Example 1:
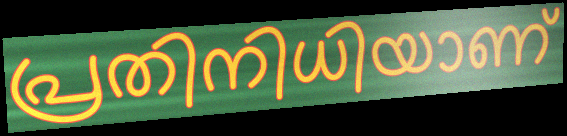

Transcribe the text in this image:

പ്രതിനിധിയാണ്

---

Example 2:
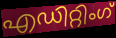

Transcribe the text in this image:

എഡിറ്റിംഗ്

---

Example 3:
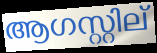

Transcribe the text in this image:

ആഗസ്റ്റില്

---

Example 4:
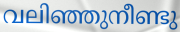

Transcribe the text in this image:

വലിഞ്ഞുനീണ്ടു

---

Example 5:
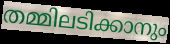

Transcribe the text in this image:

തമ്മിലടിക്കാനും